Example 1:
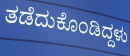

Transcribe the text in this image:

ತಡೆದುಕೊಂಡಿದ್ದಳು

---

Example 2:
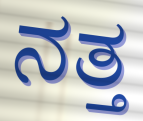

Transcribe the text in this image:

ನತ್ತ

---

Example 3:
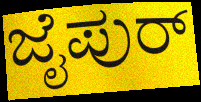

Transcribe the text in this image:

ಜೈಪುರ್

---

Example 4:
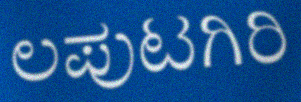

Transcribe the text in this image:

ಲಪುಟಗಿರಿ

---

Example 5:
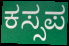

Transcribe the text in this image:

ಕಸ್ಸಪ